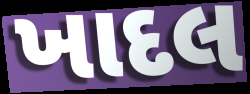
ખાદલ